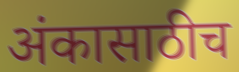
अंकासाठीच